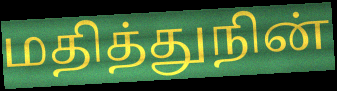
மதித்துநின்